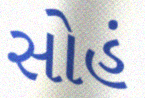
સોહં